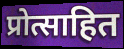
प्रोत्साहित